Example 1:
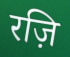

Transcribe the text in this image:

रज़ि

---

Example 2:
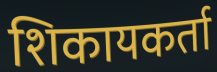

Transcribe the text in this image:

शिकायकर्ता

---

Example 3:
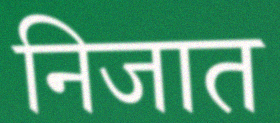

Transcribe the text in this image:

निजात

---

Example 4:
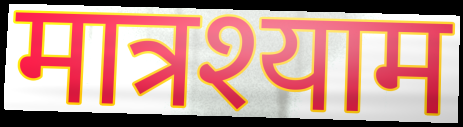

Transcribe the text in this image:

मात्रश्याम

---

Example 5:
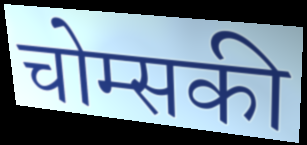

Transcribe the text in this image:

चोम्सकी